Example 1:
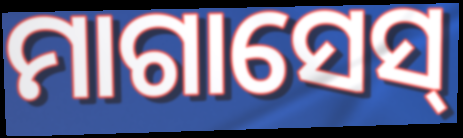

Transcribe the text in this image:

ମାଗାସେସ୍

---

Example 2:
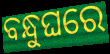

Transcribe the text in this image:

ବନ୍ଧୁଘରେ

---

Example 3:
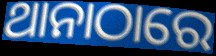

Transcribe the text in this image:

ଥାନାଠାରେ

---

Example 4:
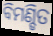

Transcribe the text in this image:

ବିମଣ୍ଡିତ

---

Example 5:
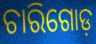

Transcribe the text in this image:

ଚାରିଗୋଡ଼